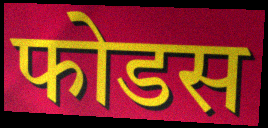
फोडस